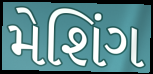
મેશિંગ